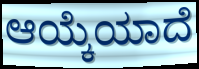
ಆಯ್ಕೆಯಾದೆ